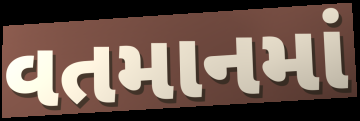
વતમાનમાં